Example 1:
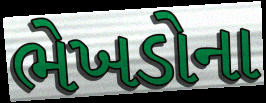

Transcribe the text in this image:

ભેખડોના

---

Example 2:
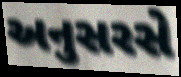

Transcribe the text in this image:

અનુસરસે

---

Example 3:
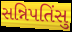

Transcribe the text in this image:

સન્નિપતિંસુ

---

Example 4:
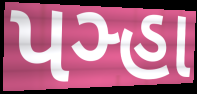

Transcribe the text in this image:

પઞ્હા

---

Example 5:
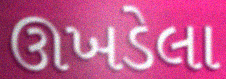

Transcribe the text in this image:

ઊખડેલા